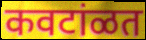
कवटांळत